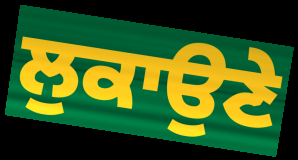
ਲੁਕਾਉਣੇ